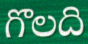
గొలది